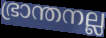
ഭ്രാന്തനല്ല